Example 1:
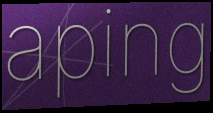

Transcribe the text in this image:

aping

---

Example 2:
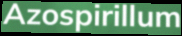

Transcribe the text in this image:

Azospirillum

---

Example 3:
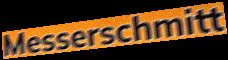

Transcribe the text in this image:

Messerschmitt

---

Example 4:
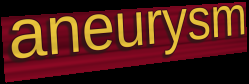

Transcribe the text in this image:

aneurysm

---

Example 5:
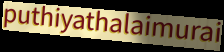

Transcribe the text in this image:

puthiyathalaimurai